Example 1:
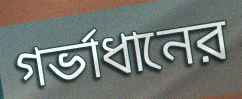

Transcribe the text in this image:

গর্ভাধানের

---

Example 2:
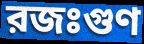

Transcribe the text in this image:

রজঃগুণ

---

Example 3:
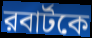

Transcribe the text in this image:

রবার্টকে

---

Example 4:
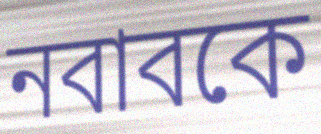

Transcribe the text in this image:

নবাবকে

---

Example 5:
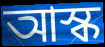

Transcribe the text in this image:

আস্ক